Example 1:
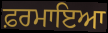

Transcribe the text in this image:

ਫ਼ਰਮਾਇਆ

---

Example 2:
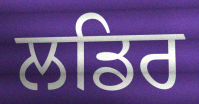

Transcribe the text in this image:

ਲਡਿਰ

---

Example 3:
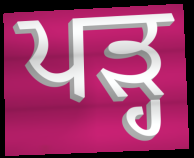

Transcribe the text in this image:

ਪੜ੍ਹ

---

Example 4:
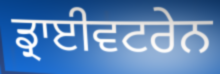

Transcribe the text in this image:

ਡ੍ਰਾਈਵਟਰੇਨ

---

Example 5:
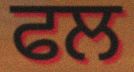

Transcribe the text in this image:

ਫਲ